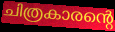
ചിത്രകാരന്റെ